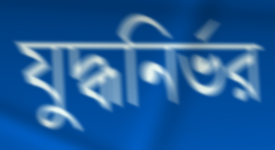
যুদ্ধনির্ভর